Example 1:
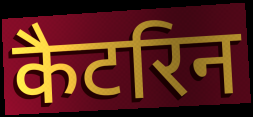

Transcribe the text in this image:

कैटरिन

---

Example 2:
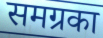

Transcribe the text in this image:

समग्रका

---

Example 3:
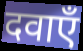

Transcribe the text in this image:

दवाएँ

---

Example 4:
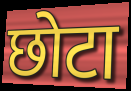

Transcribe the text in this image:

छोटा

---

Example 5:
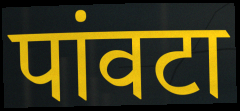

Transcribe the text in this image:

पांवटा